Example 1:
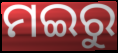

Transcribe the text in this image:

ମଇରୁ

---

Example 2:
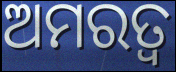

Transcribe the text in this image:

ଅମରତ୍ଵ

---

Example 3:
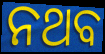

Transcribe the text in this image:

ନଥବ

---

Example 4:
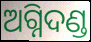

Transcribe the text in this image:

ଅଗ୍ନିଦଣ୍ଡ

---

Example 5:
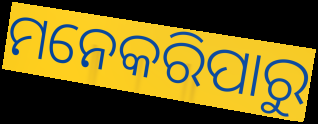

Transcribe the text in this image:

ମନେକରିପାରୁ